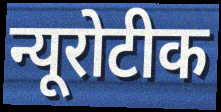
न्यूरोटीक